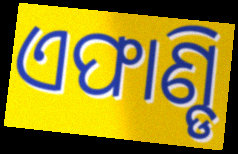
ଏଫାଣ୍ଡି